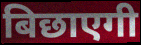
बिछाएगी